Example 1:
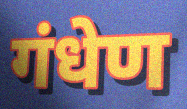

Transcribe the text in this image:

गंधेण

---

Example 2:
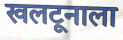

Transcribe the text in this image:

खलटूनाला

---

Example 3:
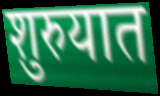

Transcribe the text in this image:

शुरुयात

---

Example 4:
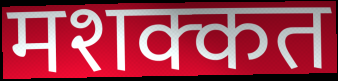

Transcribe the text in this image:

मशक्‍कत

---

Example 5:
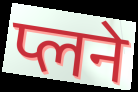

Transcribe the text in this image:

प्लने